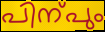
പിന്പും